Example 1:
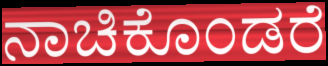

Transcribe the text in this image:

ನಾಚಿಕೊಂಡರೆ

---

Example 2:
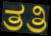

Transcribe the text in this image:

ತತಿ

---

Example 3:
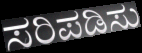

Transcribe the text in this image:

ಸರಿಪಡಿಸು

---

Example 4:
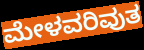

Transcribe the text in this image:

ಮೇಳವರಿವುತ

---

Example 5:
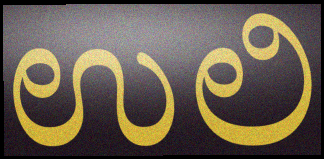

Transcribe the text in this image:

ಉಲಿ